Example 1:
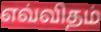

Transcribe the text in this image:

எவ்விதம்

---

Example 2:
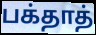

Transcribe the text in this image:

பக்தாத்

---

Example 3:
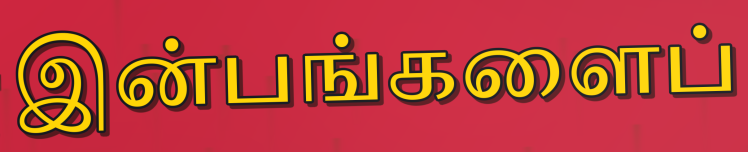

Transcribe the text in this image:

இன்பங்களைப்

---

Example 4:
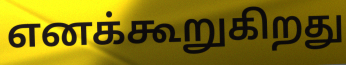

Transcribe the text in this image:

எனக்கூறுகிறது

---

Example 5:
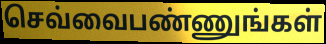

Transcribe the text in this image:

செவ்வைபண்ணுங்கள்